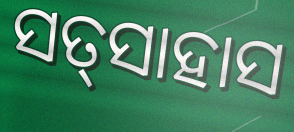
ସତ୍‌ସାହାସ